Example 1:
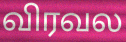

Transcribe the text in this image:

விரவல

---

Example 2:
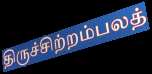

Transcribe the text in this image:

திருச்சிற்றம்பலத்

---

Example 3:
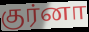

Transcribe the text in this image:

குர்னா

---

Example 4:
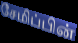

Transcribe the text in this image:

சேமிப்பின்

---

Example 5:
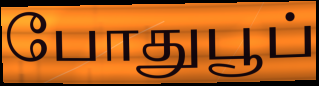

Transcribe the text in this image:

போதுபூப்